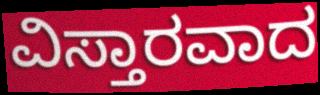
ವಿಸ್ತಾರವಾದ